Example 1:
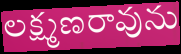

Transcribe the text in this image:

లక్ష్మణరావును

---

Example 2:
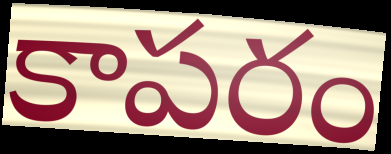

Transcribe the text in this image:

కాపరం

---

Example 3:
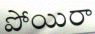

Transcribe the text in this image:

పోయిరా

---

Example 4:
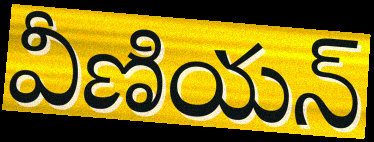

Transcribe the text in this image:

వీణియన్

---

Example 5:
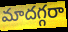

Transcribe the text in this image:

మాదగ్గరా